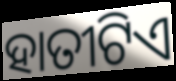
ହାତୀଟିଏ